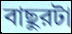
বাছুরটা